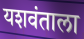
यशवंताला